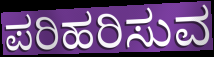
ಪರಿಹರಿಸುವ